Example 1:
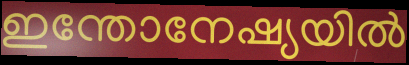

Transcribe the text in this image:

ഇന്തോനേഷ്യയിൽ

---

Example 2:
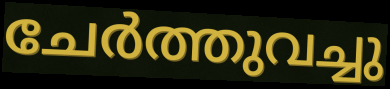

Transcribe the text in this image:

ചേർത്തുവച്ചു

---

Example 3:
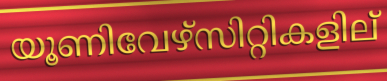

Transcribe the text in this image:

യൂണിവേഴ്സിറ്റികളില്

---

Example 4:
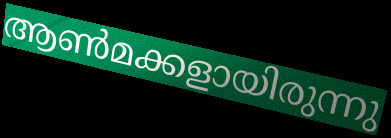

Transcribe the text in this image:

ആൺമക്കളായിരുന്നു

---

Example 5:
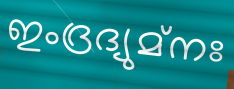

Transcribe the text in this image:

ഇംദ്രദ്യുമ്നഃ